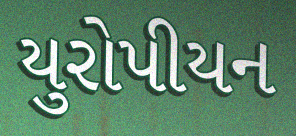
યુરોપીયન